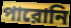
পারোনি